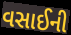
વસાઈની